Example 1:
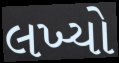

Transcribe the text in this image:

લખ્યો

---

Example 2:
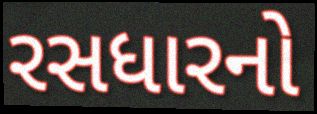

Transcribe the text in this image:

રસધારનો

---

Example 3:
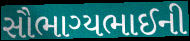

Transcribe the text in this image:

સૌભાગ્યભાઈની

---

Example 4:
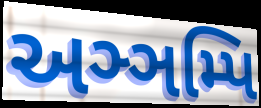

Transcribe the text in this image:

અઞ્ઞમ્પિ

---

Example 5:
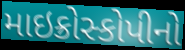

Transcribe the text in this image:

માઇક્રોસ્કોપીનો